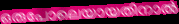
ഒരുപോലെയായതിനാൽ